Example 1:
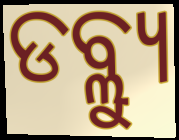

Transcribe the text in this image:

ଡବ୍ଲ୍ୟୁ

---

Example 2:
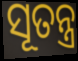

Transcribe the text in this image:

ସୂତନ୍ତ୍ର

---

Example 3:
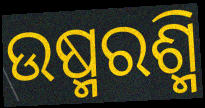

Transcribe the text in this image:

ଉଷ୍ମରଶ୍ମି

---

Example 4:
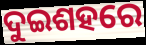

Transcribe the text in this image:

ଦୁଇଶହରେ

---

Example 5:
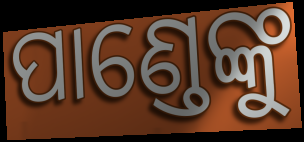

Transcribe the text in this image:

ପାଣ୍ଡେଙ୍କୁ